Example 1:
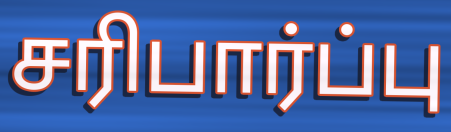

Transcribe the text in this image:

சரிபார்ப்பு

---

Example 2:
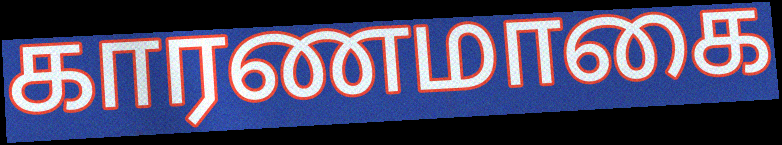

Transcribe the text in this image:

காரணமாகை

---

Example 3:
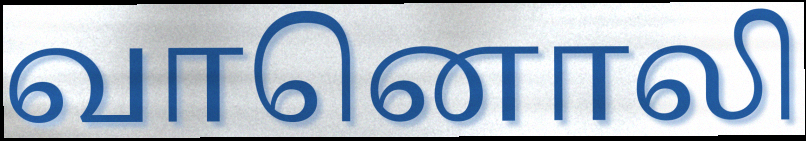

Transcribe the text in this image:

வானொலி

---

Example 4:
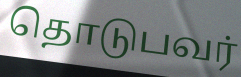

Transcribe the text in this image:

தொடுபவர்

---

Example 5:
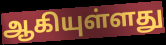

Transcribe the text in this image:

ஆகியுள்ளது